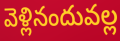
వెళ్లినందువల్ల